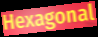
Hexagonal